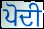
ਪੋਦੀ